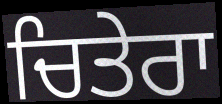
ਚਿਤੇਰਾ